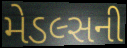
મેડલ્સની